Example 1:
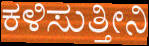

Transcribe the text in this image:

ಕಳಿಸುತ್ತೀನಿ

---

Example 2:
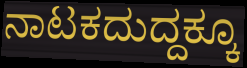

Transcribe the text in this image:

ನಾಟಕದುದ್ದಕ್ಕೂ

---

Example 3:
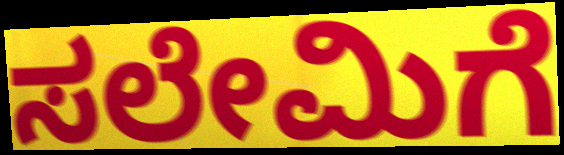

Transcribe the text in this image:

ಸಲೇಮಿಗೆ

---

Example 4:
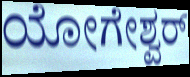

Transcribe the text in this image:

ಯೋಗೇಶ್ವರ್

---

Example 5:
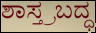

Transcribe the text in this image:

ಶಾಸ್ತ್ರಬದ್ಧ